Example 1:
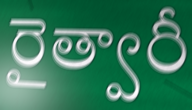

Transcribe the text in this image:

రైత్వారీ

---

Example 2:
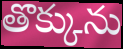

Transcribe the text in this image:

తొక్కును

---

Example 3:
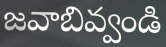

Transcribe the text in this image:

జవాబివ్వండి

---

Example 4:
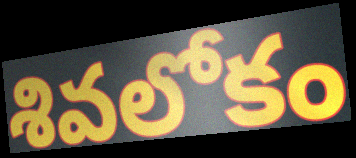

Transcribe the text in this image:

శివలోకం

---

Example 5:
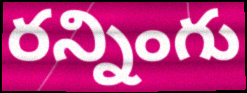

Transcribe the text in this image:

రన్నింగు